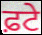
ਫ਼ਟੇ